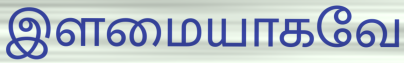
இளமையாகவே